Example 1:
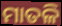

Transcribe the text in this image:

ମାତଳି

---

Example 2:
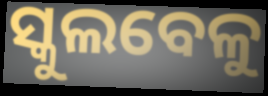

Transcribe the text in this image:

ସ୍କୁଲବେଳୁ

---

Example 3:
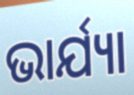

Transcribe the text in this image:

ଭାର୍ଯ୍ୟା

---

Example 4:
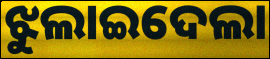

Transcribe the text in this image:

ଝୁଲାଇଦେଲା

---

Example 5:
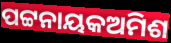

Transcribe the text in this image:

ପଟ୍ଟନାୟକଅମିଶ